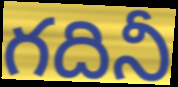
గదినీ